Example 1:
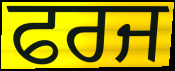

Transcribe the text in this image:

ਫਰਜ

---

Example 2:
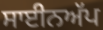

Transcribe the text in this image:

ਸਾਈਨਅੱਪ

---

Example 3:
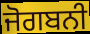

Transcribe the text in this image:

ਜੋਗਬਨੀ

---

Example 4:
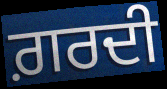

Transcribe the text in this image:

ਗ਼ਰਦੀ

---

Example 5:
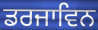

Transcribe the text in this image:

ਡਰਜਾਵਿਨ